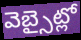
వెబ్సైట్లో